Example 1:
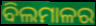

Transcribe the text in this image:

ବିଲମାଳର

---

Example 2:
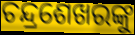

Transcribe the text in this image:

ଚନ୍ଦ୍ରଶେଖରଙ୍କୁ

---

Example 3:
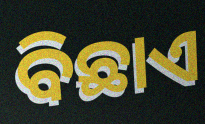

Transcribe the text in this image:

ବିଛାଏ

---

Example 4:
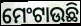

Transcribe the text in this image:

ମେଂଟାଉଛି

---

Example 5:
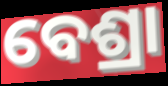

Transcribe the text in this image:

ବେଶ୍ରା